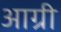
आग्री